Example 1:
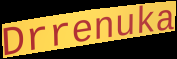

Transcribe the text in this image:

Drrenuka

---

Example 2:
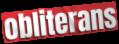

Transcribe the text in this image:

obliterans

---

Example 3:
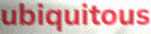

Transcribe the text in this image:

ubiquitous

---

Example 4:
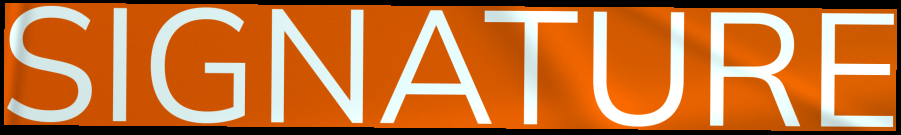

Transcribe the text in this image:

SIGNATURE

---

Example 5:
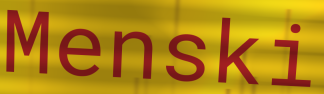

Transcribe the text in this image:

Menski